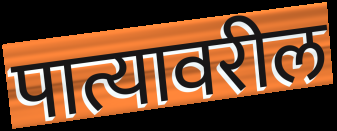
पात्यावरील